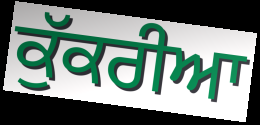
ਕੁੱਕਰੀਆ